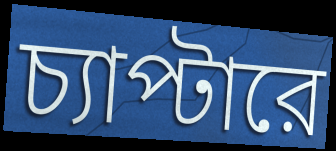
চ্যাপ্টারে